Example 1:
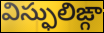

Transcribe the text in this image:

విస్ఫులిఙ్గా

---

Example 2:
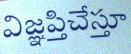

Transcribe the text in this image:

విజ్ఞప్తిచేస్తూ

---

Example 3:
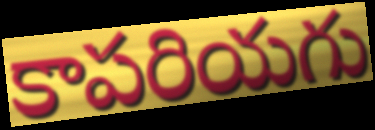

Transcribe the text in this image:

కాపరియగు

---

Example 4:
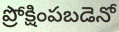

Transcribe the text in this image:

ప్రోక్షింపబడెనో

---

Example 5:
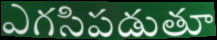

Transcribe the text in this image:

ఎగసిపడుతూ